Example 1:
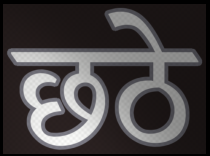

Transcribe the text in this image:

छठे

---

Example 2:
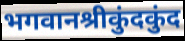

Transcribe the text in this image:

भगवानश्रीकुंदकुंद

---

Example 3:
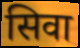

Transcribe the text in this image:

सिवा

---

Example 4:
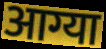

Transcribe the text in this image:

आग्या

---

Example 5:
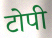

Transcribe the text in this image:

टोपी